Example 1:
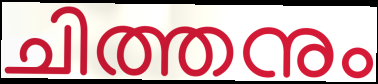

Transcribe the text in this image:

ചിത്തനും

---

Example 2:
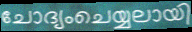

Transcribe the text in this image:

ചോദ്യംചെയ്യലായി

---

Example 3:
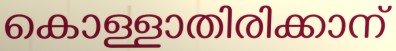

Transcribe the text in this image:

കൊള്ളാതിരിക്കാന്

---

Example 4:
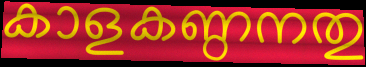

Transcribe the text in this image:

കാളകണ്ഠനതു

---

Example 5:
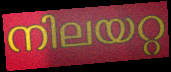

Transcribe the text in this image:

നിലയറ്റ